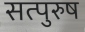
सत्पुरुष